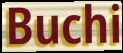
Buchi